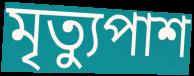
মৃত্যুপাশ